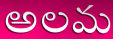
అలమ